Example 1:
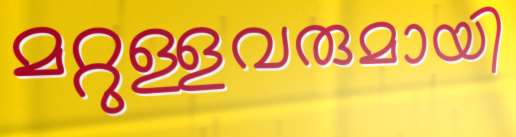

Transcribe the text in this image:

മറ്റുള്ളവരുമായി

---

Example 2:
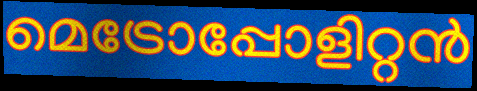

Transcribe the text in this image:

മെട്രോപ്പോളിറ്റൻ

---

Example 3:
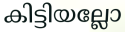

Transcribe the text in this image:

കിട്ടിയല്ലോ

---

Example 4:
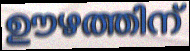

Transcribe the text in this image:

ഊഴത്തിന്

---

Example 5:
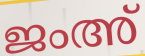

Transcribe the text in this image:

ജംഅ്